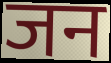
जन